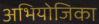
अभियोजिका